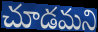
చూడమని